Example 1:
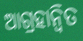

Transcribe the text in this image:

ଆଗ୍ରହାନ୍ୱିତ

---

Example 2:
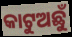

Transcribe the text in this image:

କାଟୁଅଛୁଁ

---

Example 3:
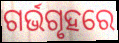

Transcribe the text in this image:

ଗର୍ଭଗୃହରେ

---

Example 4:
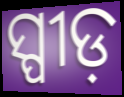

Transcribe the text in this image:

ସ୍ପୀଡ଼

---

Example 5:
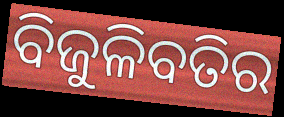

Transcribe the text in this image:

ବିଜୁଳିବତିର